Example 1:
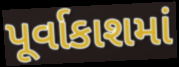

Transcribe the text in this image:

પૂર્વાકાશમાં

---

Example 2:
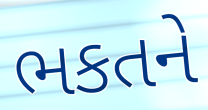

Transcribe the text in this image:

ભકતને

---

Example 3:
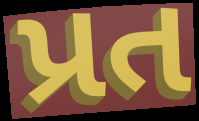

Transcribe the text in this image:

પ્રત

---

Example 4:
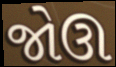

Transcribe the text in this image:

જોઊ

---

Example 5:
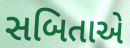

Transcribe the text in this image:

સબિતાએ